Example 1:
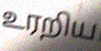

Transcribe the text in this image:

உரறிய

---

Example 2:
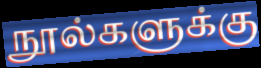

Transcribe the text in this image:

நூல்களுக்கு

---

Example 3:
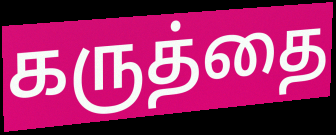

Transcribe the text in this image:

கருத்தை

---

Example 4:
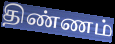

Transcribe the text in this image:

திண்ணம்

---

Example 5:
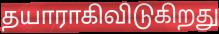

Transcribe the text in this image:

தயாராகிவிடுகிறது